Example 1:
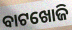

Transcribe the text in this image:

ବାଟଖୋଜି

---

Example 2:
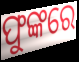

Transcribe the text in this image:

ଫୁଙ୍କରେ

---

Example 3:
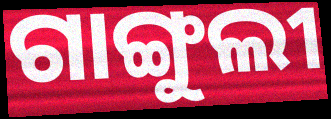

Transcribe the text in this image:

ଗାଙ୍ଗୁଲୀ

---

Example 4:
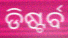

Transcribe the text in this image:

ଡିଷ୍ଟର୍ବ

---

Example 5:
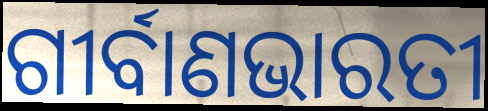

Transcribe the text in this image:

ଗୀର୍ବାଣଭାରତୀ